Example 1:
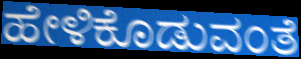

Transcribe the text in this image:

ಹೇಳಿಕೊಡುವಂತೆ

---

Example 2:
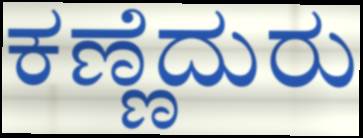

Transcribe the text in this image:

ಕಣ್ಣೆದುರು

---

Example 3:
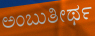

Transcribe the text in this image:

ಅಂಬುತೀರ್ಥ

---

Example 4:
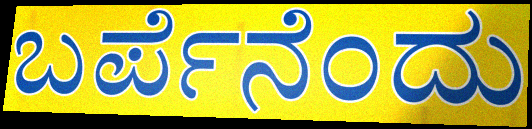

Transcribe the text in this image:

ಬರ್ಪೆನೆಂದು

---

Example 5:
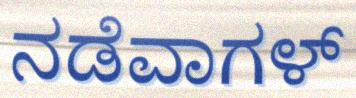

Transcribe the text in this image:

ನಡೆವಾಗಳ್